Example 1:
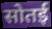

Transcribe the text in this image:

सोतई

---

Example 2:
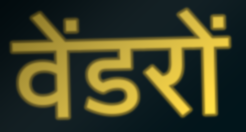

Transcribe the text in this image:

वेंडरों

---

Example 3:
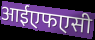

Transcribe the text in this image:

आईएफएसी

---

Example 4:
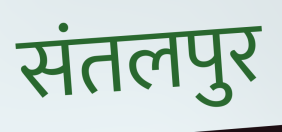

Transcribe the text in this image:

संतलपुर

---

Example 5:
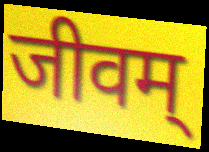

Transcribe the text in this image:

जीवम्